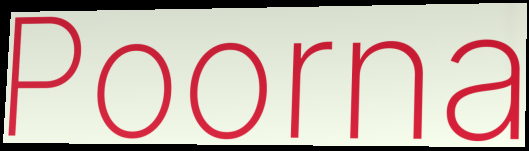
Poorna